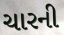
ચારની